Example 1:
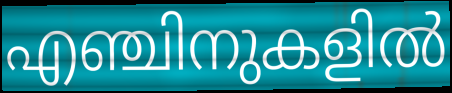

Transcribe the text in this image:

എഞ്ചിനുകളിൽ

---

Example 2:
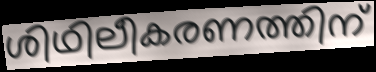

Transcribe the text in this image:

ശിഥിലീകരണത്തിന്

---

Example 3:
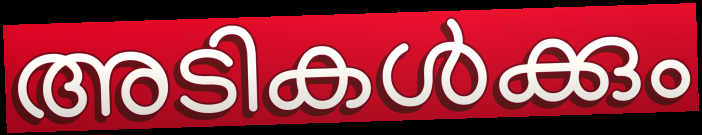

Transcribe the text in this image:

അടികൾക്കും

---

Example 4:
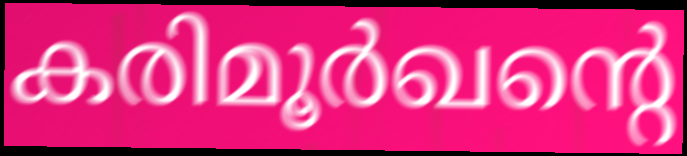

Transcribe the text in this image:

കരിമൂർഖന്റെ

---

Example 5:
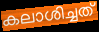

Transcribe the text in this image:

കലാശിച്ചത്